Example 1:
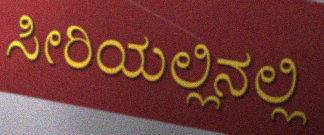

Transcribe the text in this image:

ಸೀರಿಯಲ್ಲಿನಲ್ಲಿ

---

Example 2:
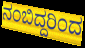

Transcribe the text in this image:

ನಂಬಿದ್ದರಿಂದ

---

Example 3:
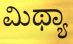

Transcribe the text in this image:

ಮಿಥ್ಯಾ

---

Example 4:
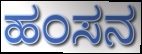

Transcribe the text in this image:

ಹಂಸನ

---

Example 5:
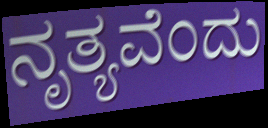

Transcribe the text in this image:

ನೃತ್ಯವೆಂದು